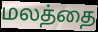
மலத்தை